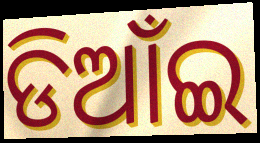
ଡିଆଁଇ